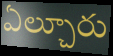
ఏల్చూరు